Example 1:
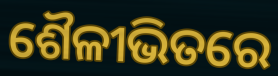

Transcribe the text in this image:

ଶୈଳୀଭିତରେ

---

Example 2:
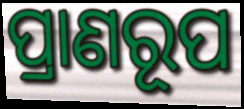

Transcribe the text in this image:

ପ୍ରାଣରୂପ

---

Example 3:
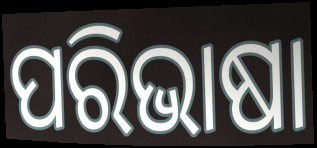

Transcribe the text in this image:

ପରିଭାଷା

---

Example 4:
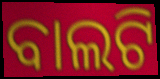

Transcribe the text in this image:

ବାଲଟି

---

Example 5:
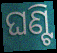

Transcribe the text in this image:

ଘଣ୍ଟି